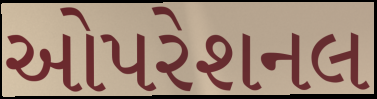
ઓપરેશનલ